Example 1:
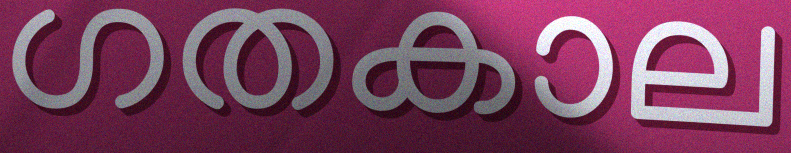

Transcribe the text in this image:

ഗതകാല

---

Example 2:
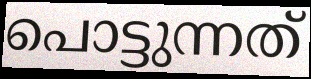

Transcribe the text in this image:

പൊട്ടുന്നത്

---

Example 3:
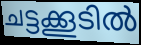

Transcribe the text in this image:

ചട്ടക്കൂടിൽ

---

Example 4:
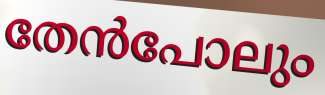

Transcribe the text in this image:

തേൻപോലും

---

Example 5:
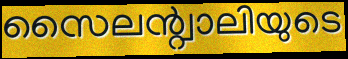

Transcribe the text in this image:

സൈലന്റ്വാലിയുടെ